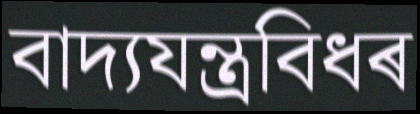
বাদ্যযন্ত্ৰবিধৰ